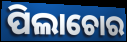
ପିଲାଚୋର